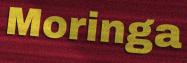
Moringa